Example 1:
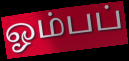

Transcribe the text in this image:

ஓம்பப்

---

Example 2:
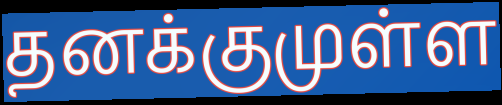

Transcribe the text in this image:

தனக்குமுள்ள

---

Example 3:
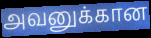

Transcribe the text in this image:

அவனுக்கான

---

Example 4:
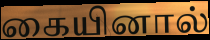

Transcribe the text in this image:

கையினால்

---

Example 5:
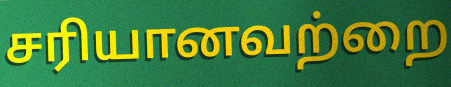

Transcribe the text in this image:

சரியானவற்றை